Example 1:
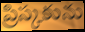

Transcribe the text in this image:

ప్రిస్కకును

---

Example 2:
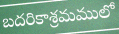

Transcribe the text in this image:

బదరికాశ్రమములో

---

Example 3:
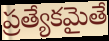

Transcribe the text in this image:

ప్రత్యేకమైతే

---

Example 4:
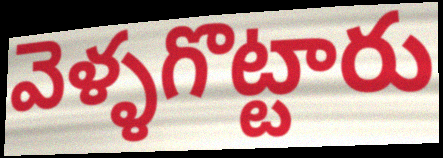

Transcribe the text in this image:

వెళ్ళగొట్టారు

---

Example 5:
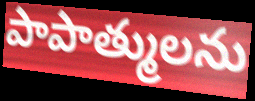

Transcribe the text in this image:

పాపాత్ములను